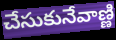
చేసుకునేవాణ్ణి